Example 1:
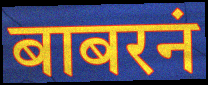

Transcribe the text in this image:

बाबरनं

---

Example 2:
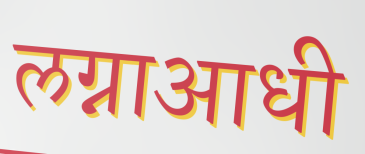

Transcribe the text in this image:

लग्नाआधी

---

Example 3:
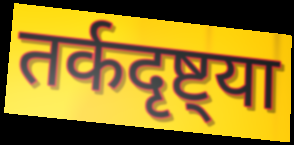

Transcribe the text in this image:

तर्कदृष्ट्या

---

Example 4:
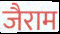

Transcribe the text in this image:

जैराम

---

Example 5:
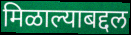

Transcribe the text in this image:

मिळाल्याबद्दल